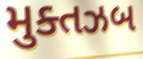
મુક્તઝબ